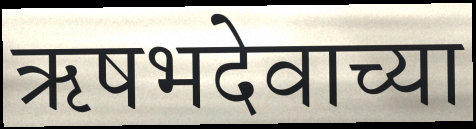
ऋषभदेवाच्या